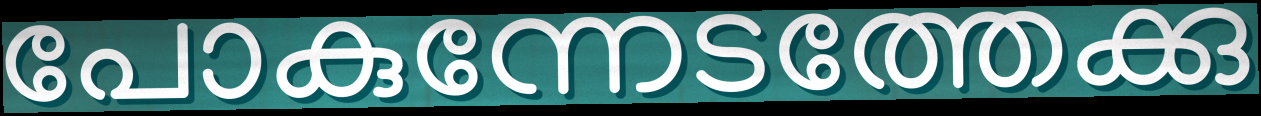
പോകുന്നേടത്തേക്കു